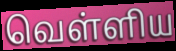
வெள்ளிய